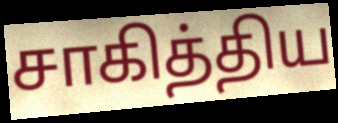
சாகித்திய